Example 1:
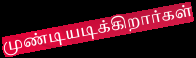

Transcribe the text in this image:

முண்டியடிக்கிறார்கள்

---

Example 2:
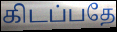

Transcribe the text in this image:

கிடப்பதே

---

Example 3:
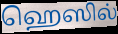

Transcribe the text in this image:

ஹெஸில்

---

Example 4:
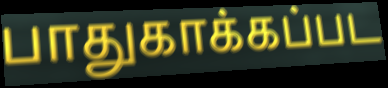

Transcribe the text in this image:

பாதுகாக்கப்பட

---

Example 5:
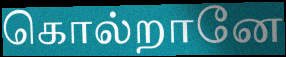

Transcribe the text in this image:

கொல்றானே